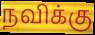
நவிக்கு